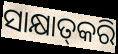
ସାକ୍ଷାତ୍‌କରି